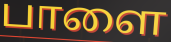
பாளை